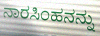
ನಾರಸಿಂಹನನ್ನು